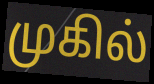
முகில்